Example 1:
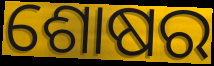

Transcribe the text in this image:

ଶୋଷର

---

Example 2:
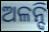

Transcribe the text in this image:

ଅଳନ୍ଦି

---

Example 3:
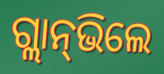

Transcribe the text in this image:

ଗ୍ଲାନ୍‌ଭିଲେ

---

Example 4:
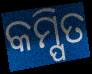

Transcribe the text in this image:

କମ୍ପିତ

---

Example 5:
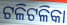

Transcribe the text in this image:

ଟଳିଟଳିକା